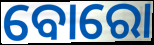
ବୋରୋ